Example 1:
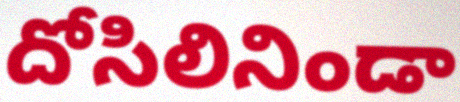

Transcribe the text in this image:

దోసిలినిండా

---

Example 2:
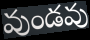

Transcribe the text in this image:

వుండవు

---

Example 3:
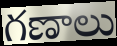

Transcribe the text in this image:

గణాలు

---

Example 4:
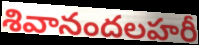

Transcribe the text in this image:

శివానందలహరీ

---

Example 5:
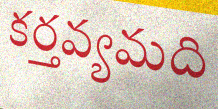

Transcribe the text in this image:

కర్తవ్యమది